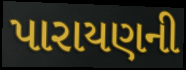
પારાયણની